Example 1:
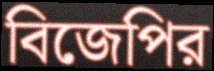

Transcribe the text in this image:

বিজেপির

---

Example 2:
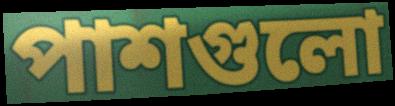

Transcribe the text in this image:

পাশগুলো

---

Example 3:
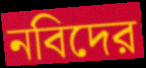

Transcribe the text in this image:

নবিদের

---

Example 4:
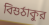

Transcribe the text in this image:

বিশুঠাকুর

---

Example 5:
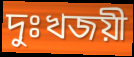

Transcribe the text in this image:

দুঃখজয়ী